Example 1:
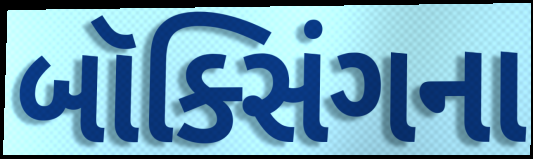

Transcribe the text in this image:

બૉક્સિંગના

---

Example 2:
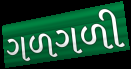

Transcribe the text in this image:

ગળગળી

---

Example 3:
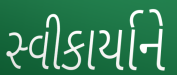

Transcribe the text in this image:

સ્વીકાર્યાને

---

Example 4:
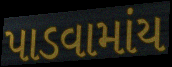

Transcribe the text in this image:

પાડવામાંય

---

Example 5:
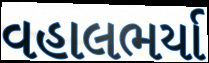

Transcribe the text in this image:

વહાલભર્યા